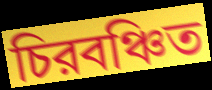
চিরবঞ্চিত